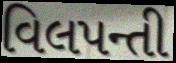
વિલપન્તી